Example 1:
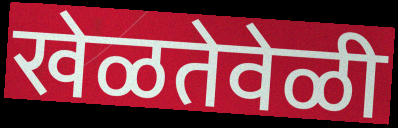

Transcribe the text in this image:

खेळतेवेळी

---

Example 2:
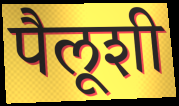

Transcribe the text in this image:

पैलूशी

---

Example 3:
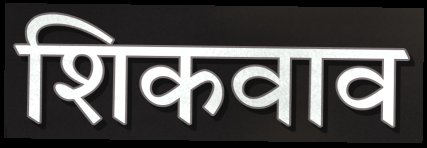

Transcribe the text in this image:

शिकवाव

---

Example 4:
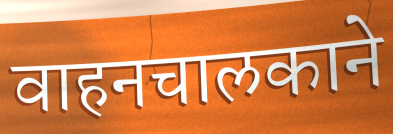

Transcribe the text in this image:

वाहनचालकाने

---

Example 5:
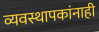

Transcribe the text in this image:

व्यवस्थापकांनाही